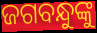
ଜଗବନ୍ଧୁଙ୍କୁ